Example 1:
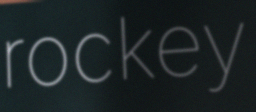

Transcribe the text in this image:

rockey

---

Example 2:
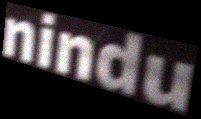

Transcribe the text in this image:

nindu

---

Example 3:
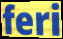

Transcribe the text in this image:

feri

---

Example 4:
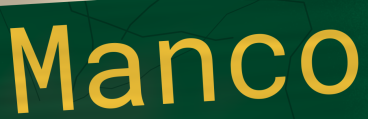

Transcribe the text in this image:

Manco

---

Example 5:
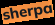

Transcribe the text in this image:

sherpa